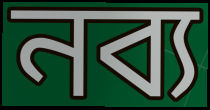
নব্য